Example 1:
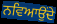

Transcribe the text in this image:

ਨਵਿਆਉਂਦੇ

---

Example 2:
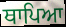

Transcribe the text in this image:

ਥਾਪਿਆ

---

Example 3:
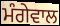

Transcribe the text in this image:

ਮੰਗੇਵਾਲ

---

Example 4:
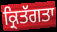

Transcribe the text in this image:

ਕ੍ਰਿਤੱਗਤਾ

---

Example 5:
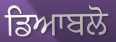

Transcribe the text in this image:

ਡਿਆਬਲੋ